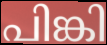
പിങ്കി